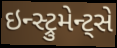
ઇન્સ્ટ્રુમેન્ટ્સે